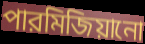
পারমিজিয়ানো